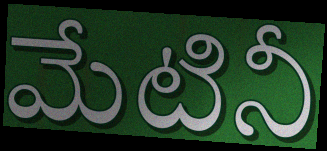
మేటినీ